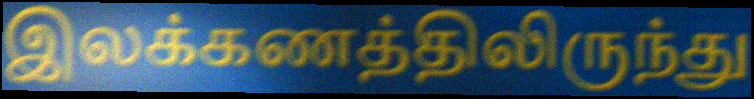
இலக்கணத்திலிருந்து